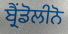
ਬ੍ਰੈਂਡੋਲੀਨੋ